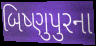
બિષ્ણુપુરના